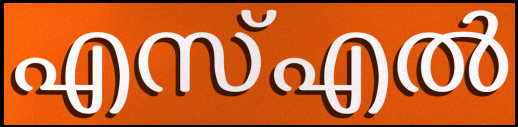
എസ്എൽ